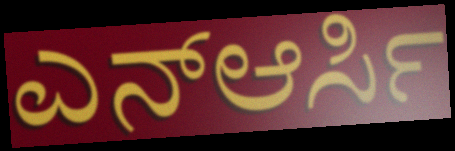
ಎನ್ಆರ್ಸಿ